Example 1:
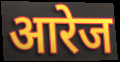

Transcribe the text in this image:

आरेज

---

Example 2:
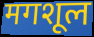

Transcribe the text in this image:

मगशूल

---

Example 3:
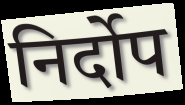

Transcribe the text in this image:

निर्दोप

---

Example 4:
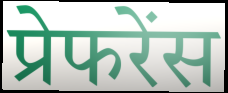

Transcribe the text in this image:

प्रेफरेंस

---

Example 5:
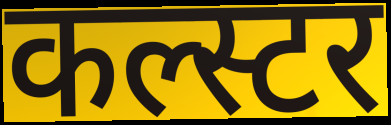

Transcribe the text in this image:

कल्स्टर